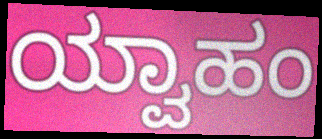
ಯ್ವಾಹಂ